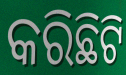
କରିଛିଟି